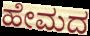
ಹೇಮದ